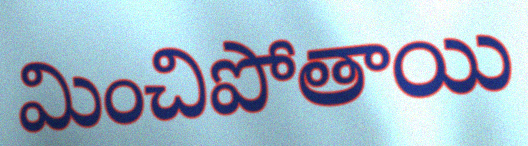
మించిపోతాయి